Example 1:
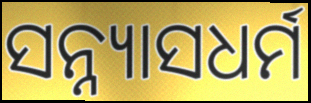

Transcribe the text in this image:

ସନ୍ନ୍ୟାସଧର୍ମ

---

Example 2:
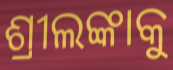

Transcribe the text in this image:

ଶ୍ରୀଲଙ୍କାକୁ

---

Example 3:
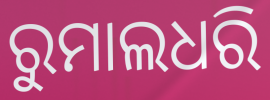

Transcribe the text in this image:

ରୁମାଲଧରି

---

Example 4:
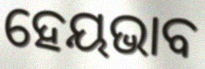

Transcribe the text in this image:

ହେୟଭାବ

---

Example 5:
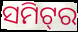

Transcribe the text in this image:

ସମିଟ୍‌ର